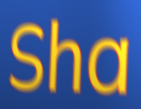
Sha